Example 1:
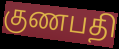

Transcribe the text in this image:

குணபதி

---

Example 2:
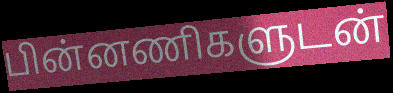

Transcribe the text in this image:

பின்னணிகளுடன்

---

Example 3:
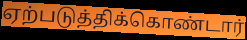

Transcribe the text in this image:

ஏற்படுத்திக்கொண்டார்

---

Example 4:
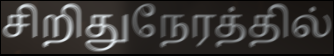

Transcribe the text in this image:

சிறிதுநேரத்தில்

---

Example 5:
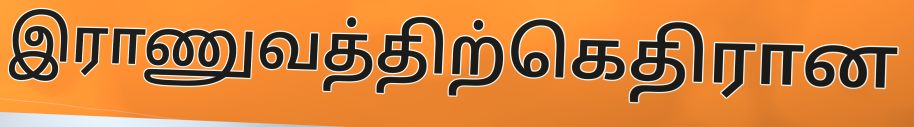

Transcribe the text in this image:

இராணுவத்திற்கெதிரான